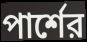
পার্শের